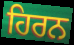
ਹਿਰਨ